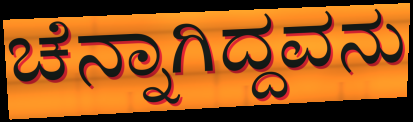
ಚೆನ್ನಾಗಿದ್ದವನು